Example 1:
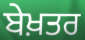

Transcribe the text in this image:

ਬੇਖ਼ਤਰ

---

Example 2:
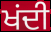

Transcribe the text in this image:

ਖਂਦੀ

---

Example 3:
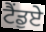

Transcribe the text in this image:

ਟੈਂਡੁਏ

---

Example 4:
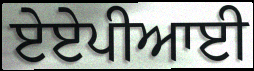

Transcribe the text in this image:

ਏਏਪੀਆਈ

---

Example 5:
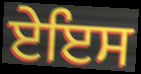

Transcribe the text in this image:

ਏਇਸ